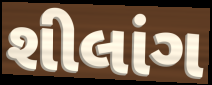
શીલાંગ